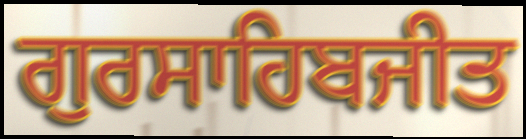
ਗੁਰਸਾਹਿਬਜੀਤ